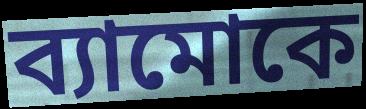
ব্যামোকে